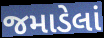
જમાડેલાં